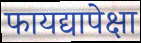
फायद्यापेक्षा